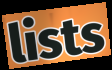
lists